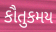
કૌતુકમય